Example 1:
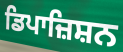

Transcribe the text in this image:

ਡਿਪਾਜ਼ਿਸ਼ਨ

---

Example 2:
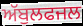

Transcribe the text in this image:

ਅੱਬੁਲਫਜਲ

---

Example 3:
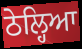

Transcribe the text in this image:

ਠੇਲ੍ਹਿਆ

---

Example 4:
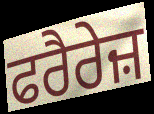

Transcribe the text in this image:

ਫਰੈਰੇਜ਼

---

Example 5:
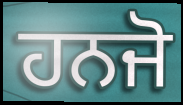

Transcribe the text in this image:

ਹਨਜੋ